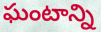
ఘంటాన్ని